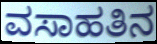
ವಸಾಹತಿನ